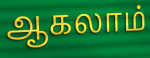
ஆகலாம்